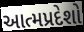
આત્મપ્રદેશો